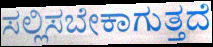
ಸಲ್ಲಿಸಬೇಕಾಗುತ್ತದೆ